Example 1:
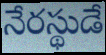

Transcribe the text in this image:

నేరస్థుడే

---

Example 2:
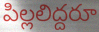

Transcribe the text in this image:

పిల్లలిద్దరూ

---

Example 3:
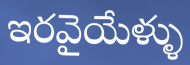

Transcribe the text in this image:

ఇరవైయేళ్ళు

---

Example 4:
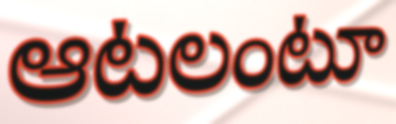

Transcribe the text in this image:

ఆటలంటూ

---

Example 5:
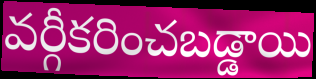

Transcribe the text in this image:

వర్గీకరించబడ్డాయి